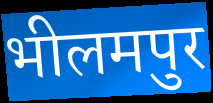
भीलमपुर